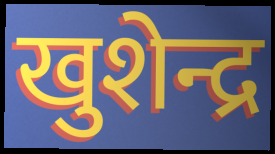
खुशेन्द्र